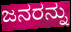
ಜನರನ್ನು